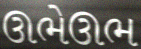
ઊભેઊભ